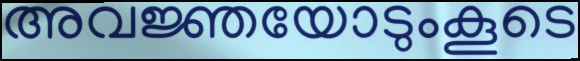
അവജ്ഞയോടുംകൂടെ